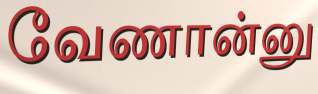
வேணான்னு